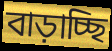
বাড়াচ্ছি